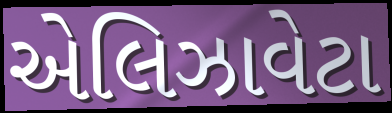
એલિઝાવેટા